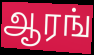
ஆரங்